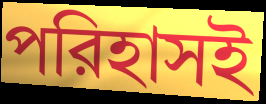
পরিহাসই